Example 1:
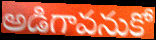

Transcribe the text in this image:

అడిగావనుకో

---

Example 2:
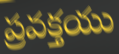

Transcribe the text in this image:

ప్రవక్తయు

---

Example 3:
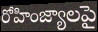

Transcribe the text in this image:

రోహింజ్యాలపై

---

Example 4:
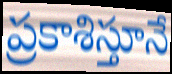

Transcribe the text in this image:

ప్రకాశిస్తూనే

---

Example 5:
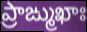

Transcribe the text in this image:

ప్రాఙ్ముఖాః